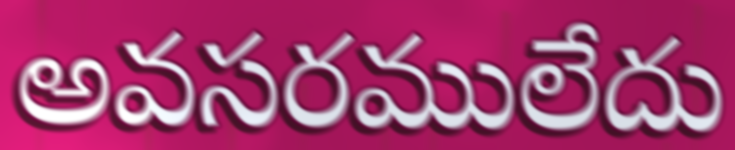
అవసరములేదు